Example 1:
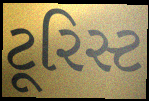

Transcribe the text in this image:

ટૂરિસ્ટ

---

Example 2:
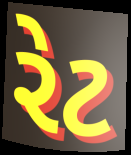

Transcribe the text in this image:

રેટ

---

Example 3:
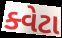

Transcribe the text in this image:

ક્વેટા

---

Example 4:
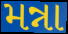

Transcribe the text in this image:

મન્ના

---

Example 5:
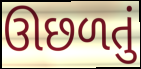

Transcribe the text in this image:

ઊછળતું